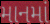
માનમાં